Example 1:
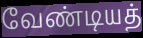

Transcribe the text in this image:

வேண்டியத்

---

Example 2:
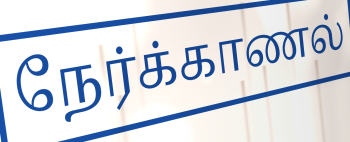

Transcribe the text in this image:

நேர்க்காணல்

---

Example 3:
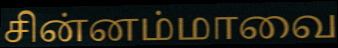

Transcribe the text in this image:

சின்னம்மாவை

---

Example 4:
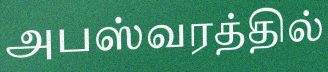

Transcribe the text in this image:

அபஸ்வரத்தில்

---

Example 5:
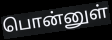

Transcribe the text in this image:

பொன்னுள்